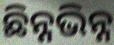
ଛିନ୍ନଭିନ୍ନ